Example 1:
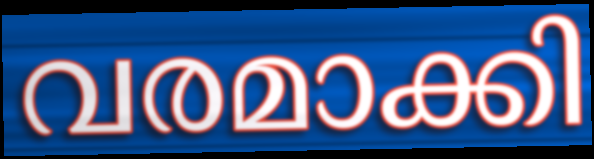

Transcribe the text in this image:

വരമാക്കി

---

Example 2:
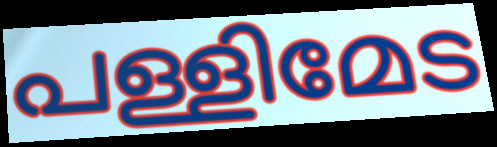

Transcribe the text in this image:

പള്ളിമേട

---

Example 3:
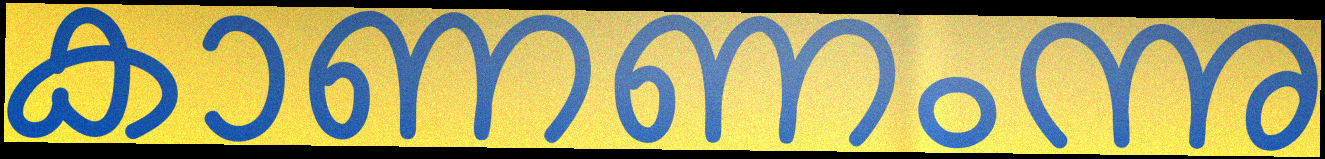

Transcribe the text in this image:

കാണണംന്നു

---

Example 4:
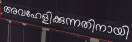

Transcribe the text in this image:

അവഹേളിക്കുന്നതിനായി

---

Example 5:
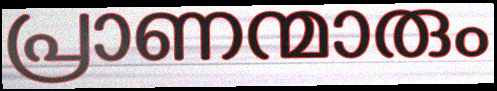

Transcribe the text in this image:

പ്രാണന്മാരും